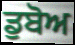
ਡੁਬੋਅ